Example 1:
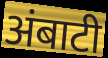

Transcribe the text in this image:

अंबाटी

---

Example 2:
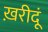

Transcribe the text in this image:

ख़रीदूं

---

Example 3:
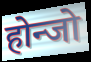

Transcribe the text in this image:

होन्जो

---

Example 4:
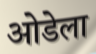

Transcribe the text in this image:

ओडेला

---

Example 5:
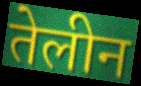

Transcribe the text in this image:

तेलीन